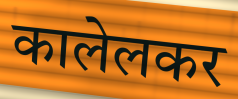
कालेलकर